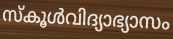
സ്കൂൾവിദ്യാഭ്യാസം